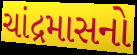
ચાંદ્રમાસનો